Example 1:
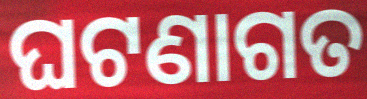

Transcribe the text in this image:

ଘଟଣାଗତ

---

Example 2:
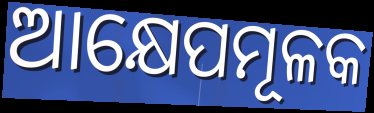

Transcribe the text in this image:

ଆକ୍ଷେପମୂଳକ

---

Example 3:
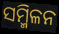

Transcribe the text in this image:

ସମ୍ମିଳନ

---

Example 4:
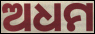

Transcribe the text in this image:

ଅଧମ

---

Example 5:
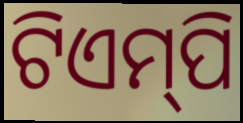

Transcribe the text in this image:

ଟିଏମ୍‌ପି